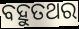
ବହୁତଥର